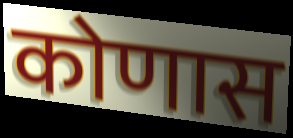
कोणास